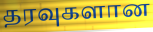
தரவுகளான